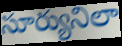
సూర్యునిలా